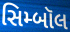
સિમ્બૉલ